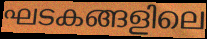
ഘടകങ്ങളിലെ